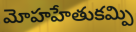
మోహహేతుకమ్పి